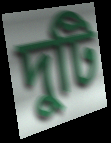
দুটি